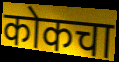
कोकचा